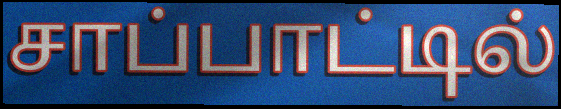
சாப்பாட்டில்